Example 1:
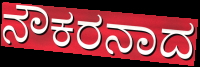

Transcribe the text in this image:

ನೌಕರನಾದ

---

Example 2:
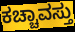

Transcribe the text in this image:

ಕಚ್ಚಾವಸ್ತು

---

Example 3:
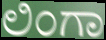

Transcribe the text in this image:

ಲಿಂಗಾ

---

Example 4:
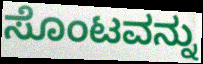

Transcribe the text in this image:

ಸೊಂಟವನ್ನು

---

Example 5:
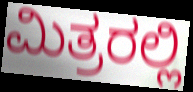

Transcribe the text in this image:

ಮಿತ್ರರಲ್ಲಿ